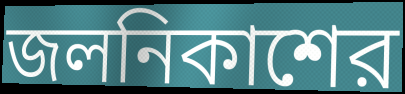
জলনিকাশের